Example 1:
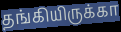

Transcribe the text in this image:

தங்கியிருக்கா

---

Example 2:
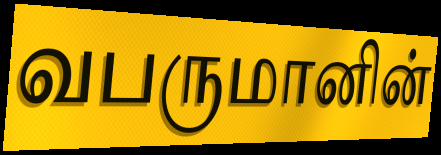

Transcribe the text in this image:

வபருமானின்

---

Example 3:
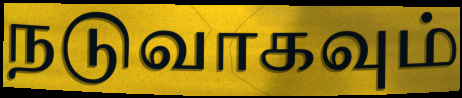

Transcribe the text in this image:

நடுவாகவும்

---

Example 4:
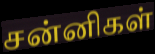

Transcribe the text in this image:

சன்னிகள்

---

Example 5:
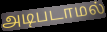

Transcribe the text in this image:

அடிபடாமல்